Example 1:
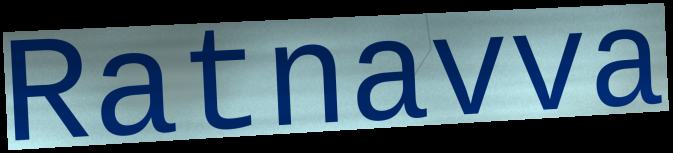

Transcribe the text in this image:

Ratnavva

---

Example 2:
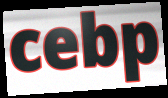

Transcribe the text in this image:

cebp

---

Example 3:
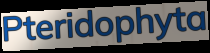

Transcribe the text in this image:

Pteridophyta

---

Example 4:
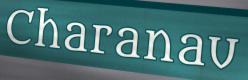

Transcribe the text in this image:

Charanau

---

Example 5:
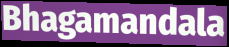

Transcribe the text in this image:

Bhagamandala